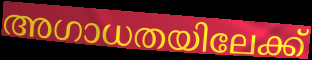
അഗാധതയിലേക്ക്